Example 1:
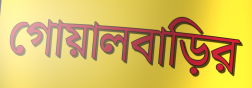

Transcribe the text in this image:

গোয়ালবাড়ির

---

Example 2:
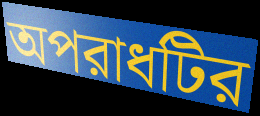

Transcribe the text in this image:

অপরাধটির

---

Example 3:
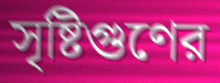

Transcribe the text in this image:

সৃষ্টিগুণের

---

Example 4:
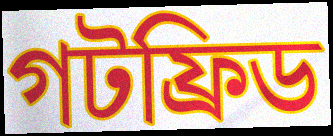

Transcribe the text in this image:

গটফ্রিড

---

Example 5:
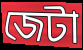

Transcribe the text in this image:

জেটা